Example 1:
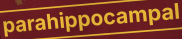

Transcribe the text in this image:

parahippocampal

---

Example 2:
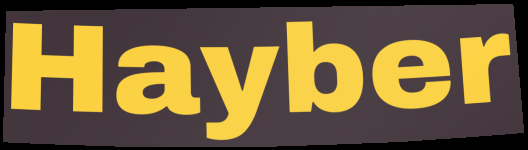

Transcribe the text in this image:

Hayber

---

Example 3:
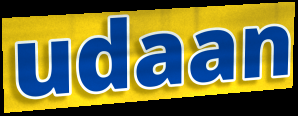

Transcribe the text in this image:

udaan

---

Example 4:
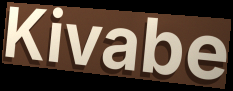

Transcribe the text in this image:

Kivabe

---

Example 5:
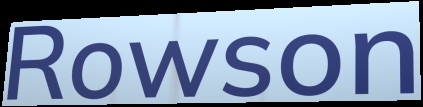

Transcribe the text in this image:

Rowson